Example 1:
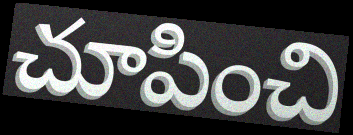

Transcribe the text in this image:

చూపించి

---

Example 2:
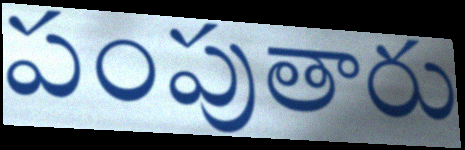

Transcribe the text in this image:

పంపుతారు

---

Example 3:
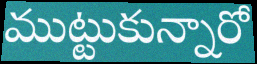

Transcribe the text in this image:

ముట్టుకున్నారో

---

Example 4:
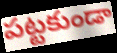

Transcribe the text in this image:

పట్టకుండా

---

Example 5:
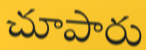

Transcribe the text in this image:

చూపారు